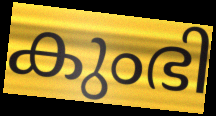
കുംഭി